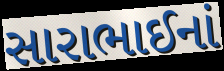
સારાભાઈનાં